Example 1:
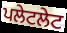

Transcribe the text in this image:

ਪਲੇਟਲੇਟ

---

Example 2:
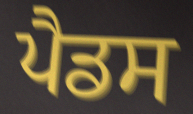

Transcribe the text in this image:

ਪੈਡਸ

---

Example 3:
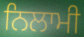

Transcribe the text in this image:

ਨਿਲਾਮੀ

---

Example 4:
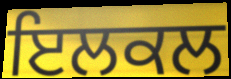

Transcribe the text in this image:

ਇਲਕਲ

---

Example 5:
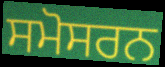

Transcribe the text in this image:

ਸਮੋਸਰਨ